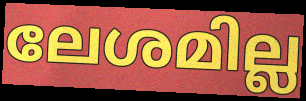
ലേശമില്ല